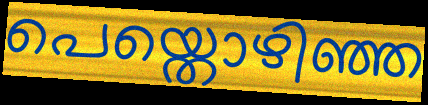
പെയ്തൊഴിഞ്ഞ